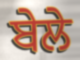
ਬੇਲੇ